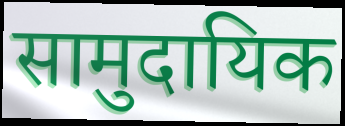
सामुदायिक